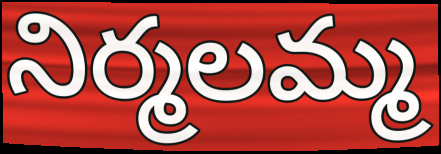
నిర్మలమ్మ